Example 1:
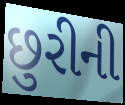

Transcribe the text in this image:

છુરીની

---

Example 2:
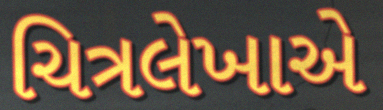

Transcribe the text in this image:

ચિત્રલેખાએ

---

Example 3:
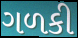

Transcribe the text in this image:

ગળકી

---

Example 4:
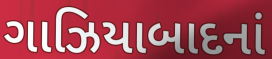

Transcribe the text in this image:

ગાઝિયાબાદનાં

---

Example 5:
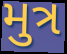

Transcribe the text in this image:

મુત્ર